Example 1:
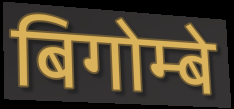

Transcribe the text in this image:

बिगोम्बे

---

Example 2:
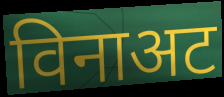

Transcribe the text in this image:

विनाअट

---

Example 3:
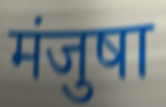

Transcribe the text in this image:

मंजुषा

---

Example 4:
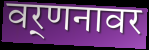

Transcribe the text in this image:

वर्णनावर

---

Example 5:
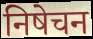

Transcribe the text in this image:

निषेचन